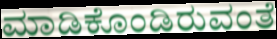
ಮಾಡಿಕೊಂಡಿರುವಂತೆ